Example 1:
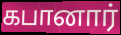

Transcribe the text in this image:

கபானார்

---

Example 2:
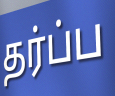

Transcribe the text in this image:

தர்ப்ப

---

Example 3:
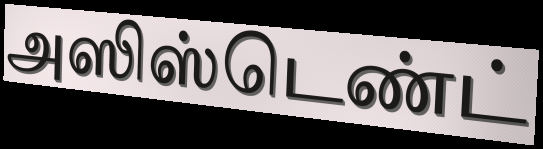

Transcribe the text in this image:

அஸிஸ்டெண்ட்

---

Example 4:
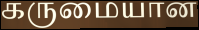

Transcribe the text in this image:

கருமையான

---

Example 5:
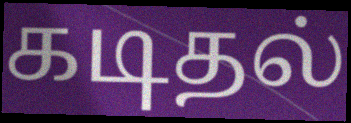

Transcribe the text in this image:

கடிதல்